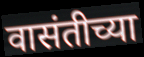
वासंतीच्या